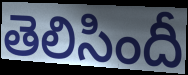
తెలిసిందీ